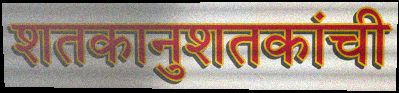
शतकानुशतकांची